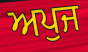
ਅਪੁਜ